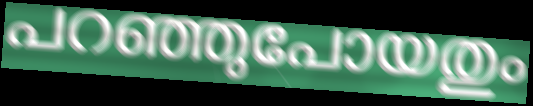
പറഞ്ഞുപോയതും